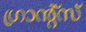
ഗ്രാന്റ്സ്